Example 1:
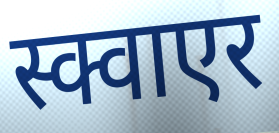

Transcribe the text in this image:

स्क्वाएर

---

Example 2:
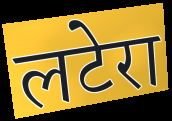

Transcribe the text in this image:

लटेरा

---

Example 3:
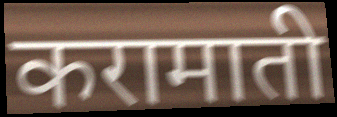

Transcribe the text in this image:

करामाती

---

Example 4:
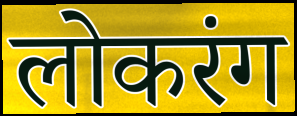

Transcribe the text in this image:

लोकरंग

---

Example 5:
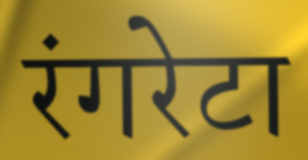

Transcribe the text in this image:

रंगरेटा